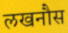
लखनौस